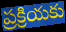
ప్రక్రియకు